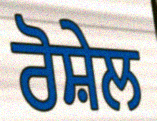
ਰੋਸ਼ੇਲ